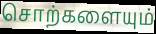
சொற்களையும்